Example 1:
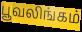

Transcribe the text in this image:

பூவலிங்கம்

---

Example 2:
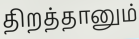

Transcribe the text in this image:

திறத்தானும்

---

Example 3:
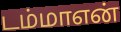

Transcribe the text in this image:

டம்மாஎன்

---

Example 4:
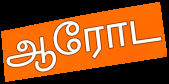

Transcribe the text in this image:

ஆரோட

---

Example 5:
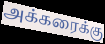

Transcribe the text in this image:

அக்கரைக்கு